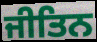
ਜੀਤਿਨ